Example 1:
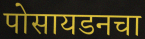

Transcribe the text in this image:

पोसायडनचा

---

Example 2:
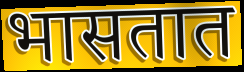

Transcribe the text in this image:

भासतात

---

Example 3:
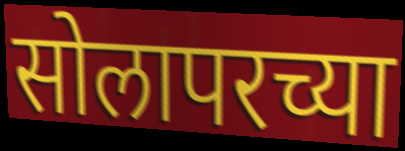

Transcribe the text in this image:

सोलापरच्या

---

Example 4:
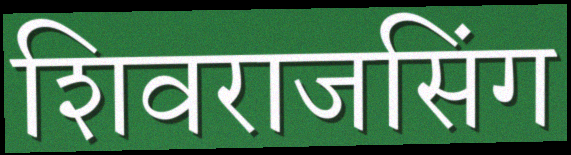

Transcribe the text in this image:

शिवराजसिंग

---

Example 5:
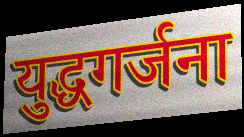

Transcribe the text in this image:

युद्धगर्जना